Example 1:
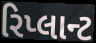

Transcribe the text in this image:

રિપ્લાન્ટ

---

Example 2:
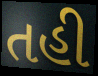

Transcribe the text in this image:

તહી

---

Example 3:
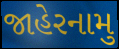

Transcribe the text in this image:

જાહેરનામુ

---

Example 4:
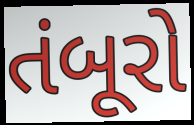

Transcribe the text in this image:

તંબૂરો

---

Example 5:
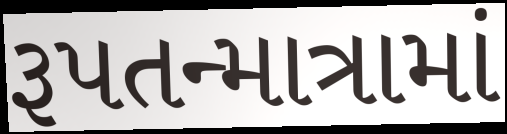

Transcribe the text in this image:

રૂપતન્માત્રામાં